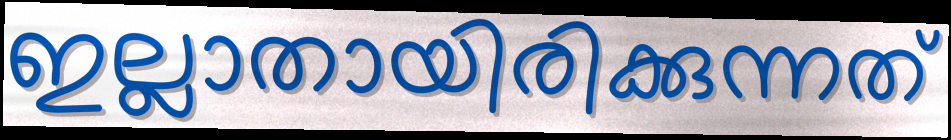
ഇല്ലാതായിരിക്കുന്നത്